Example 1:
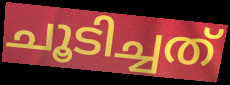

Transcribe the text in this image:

ചൂടിച്ചത്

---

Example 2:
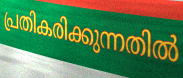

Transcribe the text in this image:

പ്രതികരിക്കുന്നതിൽ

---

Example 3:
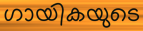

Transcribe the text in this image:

ഗായികയുടെ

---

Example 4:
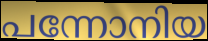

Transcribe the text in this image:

പന്നോനിയ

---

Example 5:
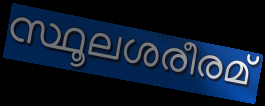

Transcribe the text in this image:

സ്ഥൂലശരീരമ്